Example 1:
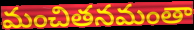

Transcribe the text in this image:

మంచితనమంతా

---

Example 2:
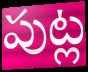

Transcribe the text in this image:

పుట్ల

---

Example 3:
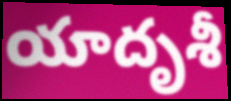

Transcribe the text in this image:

యాదృశీ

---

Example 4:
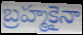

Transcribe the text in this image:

బ్రహ్మకైనా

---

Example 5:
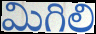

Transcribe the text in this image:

మిగిలి